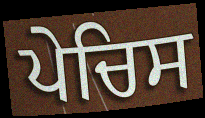
ਪੇਚਿਸ